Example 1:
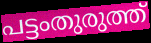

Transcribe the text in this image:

പട്ടംതുരുത്ത്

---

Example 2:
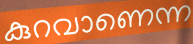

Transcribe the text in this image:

കുറവാണെന്ന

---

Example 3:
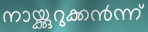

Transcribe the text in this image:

നായ്ക്കുറുക്കൻന്ന്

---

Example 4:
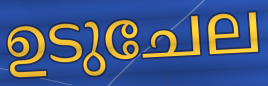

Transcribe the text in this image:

ഉടുചേല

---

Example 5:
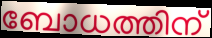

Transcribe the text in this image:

ബോധത്തിന്